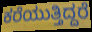
ಕರೆಯುತ್ತಿದ್ದರೆ